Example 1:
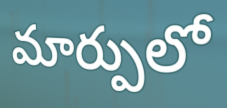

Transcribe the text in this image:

మార్పులో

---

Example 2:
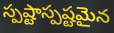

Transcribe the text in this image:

స్పష్టాస్పష్టమైన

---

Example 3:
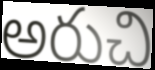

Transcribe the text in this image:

అరుచి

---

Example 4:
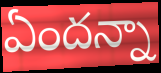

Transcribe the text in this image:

ఏందన్నా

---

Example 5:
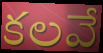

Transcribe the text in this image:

కలవే